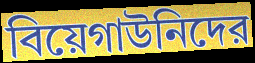
বিয়েগাউনিদের